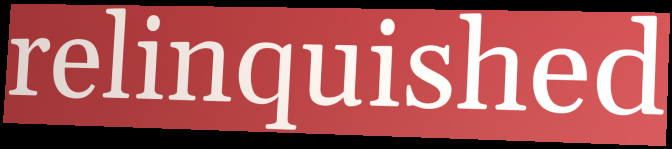
relinquished